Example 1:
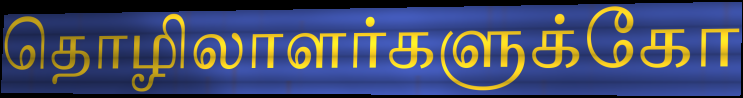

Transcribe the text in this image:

தொழிலாளர்களுக்கோ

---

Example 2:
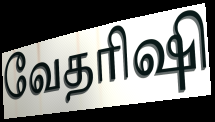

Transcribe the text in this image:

வேதரிஷி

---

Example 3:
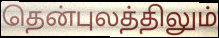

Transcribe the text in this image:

தென்புலத்திலும்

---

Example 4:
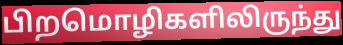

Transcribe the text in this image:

பிறமொழிகளிலிருந்து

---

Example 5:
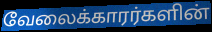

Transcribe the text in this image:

வேலைக்காரர்களின்